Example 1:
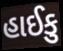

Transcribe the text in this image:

હાઈકુ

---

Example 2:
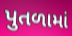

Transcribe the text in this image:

પુતળામાં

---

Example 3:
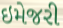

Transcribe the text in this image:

ઇમેજરી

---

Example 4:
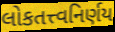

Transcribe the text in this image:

લોકતત્ત્વનિર્ણય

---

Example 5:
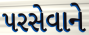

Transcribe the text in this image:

પરસેવાને